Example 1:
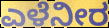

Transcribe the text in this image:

ಎಳೆನೀರ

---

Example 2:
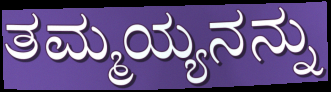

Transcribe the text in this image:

ತಮ್ಮಯ್ಯನನ್ನು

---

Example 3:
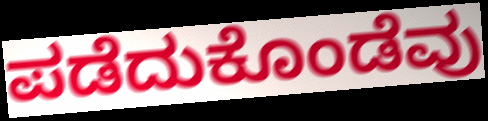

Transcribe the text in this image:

ಪಡೆದುಕೊಂಡೆವು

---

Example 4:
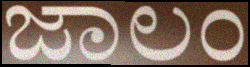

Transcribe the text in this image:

ಜಾಲಂ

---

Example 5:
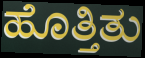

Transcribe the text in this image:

ಹೊತ್ತಿತು